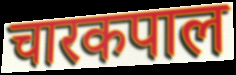
चारकपाल